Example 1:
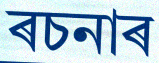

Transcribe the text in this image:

ৰচনাৰ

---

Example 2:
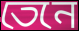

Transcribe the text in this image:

তেনে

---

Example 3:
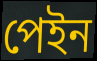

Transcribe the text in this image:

পেইন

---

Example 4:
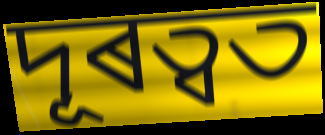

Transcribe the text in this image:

দূৰত্বত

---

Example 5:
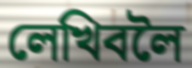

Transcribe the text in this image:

লেখিবলৈ